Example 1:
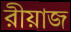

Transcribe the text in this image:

রীয়াজ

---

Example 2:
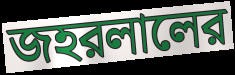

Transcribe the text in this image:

জহরলালের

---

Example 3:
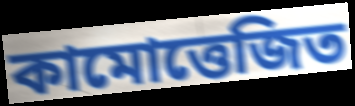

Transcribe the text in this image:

কামোত্তেজিত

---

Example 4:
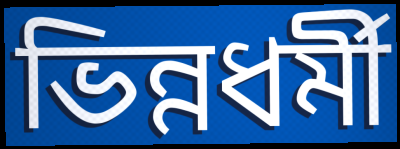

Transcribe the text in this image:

ভিন্নধর্মী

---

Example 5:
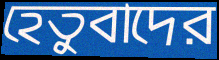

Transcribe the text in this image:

হেতুবাদের